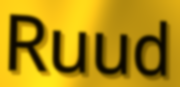
Ruud